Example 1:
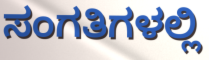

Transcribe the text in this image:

ಸಂಗತಿಗಳಲ್ಲಿ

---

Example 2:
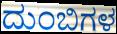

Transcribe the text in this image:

ದುಂಬಿಗಳ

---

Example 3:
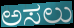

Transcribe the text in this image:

ಅಸಲು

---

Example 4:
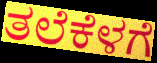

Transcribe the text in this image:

ತಲೆಕೆಳಗೆ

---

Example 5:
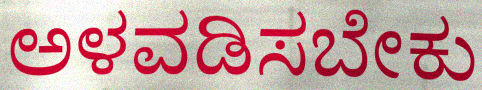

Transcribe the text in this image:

ಅಳವಡಿಸಬೇಕು